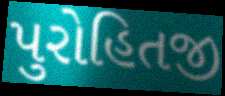
પુરોહિતજી